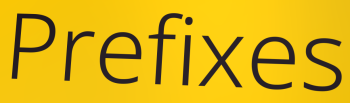
Prefixes